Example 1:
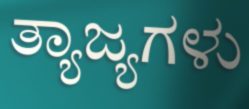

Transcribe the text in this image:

ತ್ಯಾಜ್ಯಗಳು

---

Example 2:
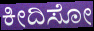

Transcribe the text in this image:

ಕೀದಿಸೋ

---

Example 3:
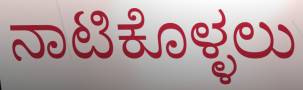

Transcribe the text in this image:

ನಾಟಿಕೊಳ್ಳಲು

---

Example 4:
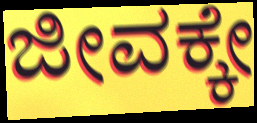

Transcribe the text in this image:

ಜೀವಕ್ಕೇ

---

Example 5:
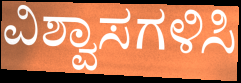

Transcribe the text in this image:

ವಿಶ್ವಾಸಗಳಿಸಿ